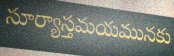
సూర్యాస్తమయమునకు